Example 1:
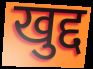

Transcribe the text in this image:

खुद्द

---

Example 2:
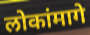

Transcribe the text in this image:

लोकांमागे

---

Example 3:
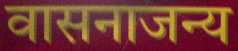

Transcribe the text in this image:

वासनाजन्य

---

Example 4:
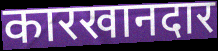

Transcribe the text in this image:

कारखानदार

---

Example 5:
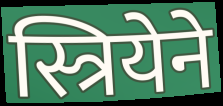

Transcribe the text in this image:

स्त्रियेने